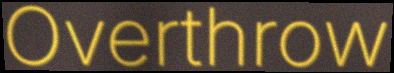
Overthrow